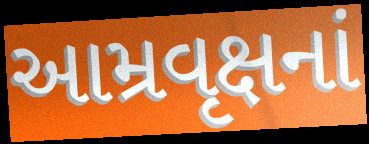
આમ્રવૃક્ષનાં